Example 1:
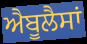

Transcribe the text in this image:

ਐਬੂਲੈਸਾਂ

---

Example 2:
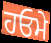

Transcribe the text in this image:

ਹਓਮੇ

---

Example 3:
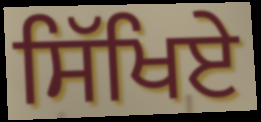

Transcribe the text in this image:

ਸਿੱਖਿਏ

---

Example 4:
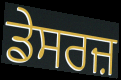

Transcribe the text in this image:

ਡੇਸਰਜ਼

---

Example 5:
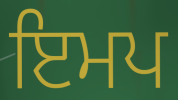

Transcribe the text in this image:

ਇਮਪ